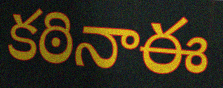
కఠినాఈ